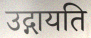
उद्गायति